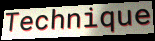
Technique